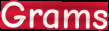
Grams